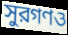
সুরগণও